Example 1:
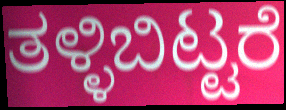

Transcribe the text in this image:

ತಳ್ಳಿಬಿಟ್ಟರೆ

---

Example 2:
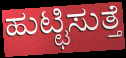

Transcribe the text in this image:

ಹುಟ್ಟಿಸುತ್ತೆ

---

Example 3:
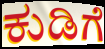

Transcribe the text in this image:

ಕುಡಿಗೆ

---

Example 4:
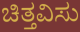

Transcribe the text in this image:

ಚಿತ್ತವಿಸು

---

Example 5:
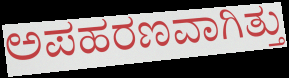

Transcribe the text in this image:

ಅಪಹರಣವಾಗಿತ್ತು